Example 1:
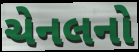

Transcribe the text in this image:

ચેનલનો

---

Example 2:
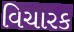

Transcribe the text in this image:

વિચારક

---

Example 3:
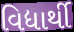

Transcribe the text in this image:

વિદ્યાર્થી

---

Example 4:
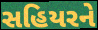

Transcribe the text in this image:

સહિયરને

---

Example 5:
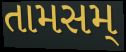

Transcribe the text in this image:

તામસમ્